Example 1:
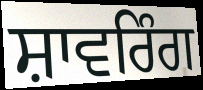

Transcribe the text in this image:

ਸ਼ਾਵਰਿੰਗ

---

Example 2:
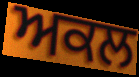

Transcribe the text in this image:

ਅਕਲ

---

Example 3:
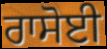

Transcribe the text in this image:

ਰਾਸੋਈ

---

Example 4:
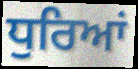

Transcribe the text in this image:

ਧੁਰਿਆਂ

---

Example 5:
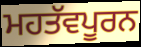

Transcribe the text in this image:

ਮਹਤੱਵਪੂਰਨ